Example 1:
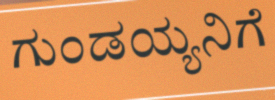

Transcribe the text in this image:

ಗುಂಡಯ್ಯನಿಗೆ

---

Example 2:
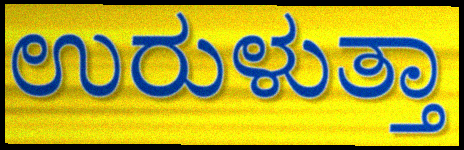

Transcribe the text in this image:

ಉರುಳುತ್ತಾ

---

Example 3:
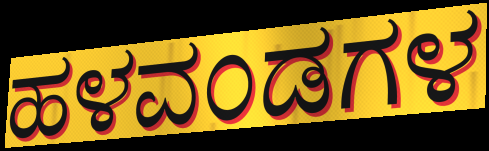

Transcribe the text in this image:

ಹಳವಂಡಗಳ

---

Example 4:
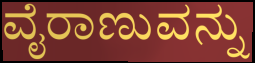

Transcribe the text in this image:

ವೈರಾಣುವನ್ನು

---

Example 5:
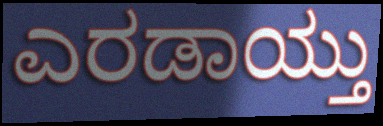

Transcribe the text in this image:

ಎರಡಾಯ್ತು